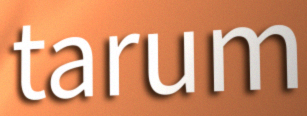
tarum